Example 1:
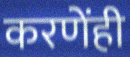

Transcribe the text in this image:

करणेंही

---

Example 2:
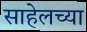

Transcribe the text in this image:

साहेलच्या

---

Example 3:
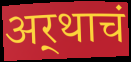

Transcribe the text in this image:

अर्थाचं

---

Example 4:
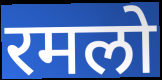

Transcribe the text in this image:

रमलो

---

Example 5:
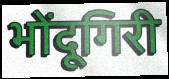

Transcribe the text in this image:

भोंदूगिरी